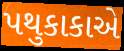
પથુકાકાએ